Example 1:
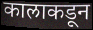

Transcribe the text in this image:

कालाकडून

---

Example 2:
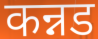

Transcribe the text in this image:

कन्नड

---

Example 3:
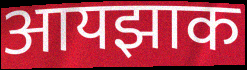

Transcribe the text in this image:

आयझाक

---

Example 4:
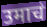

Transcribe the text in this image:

उमाचं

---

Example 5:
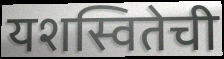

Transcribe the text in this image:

यशस्वितेची